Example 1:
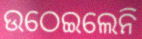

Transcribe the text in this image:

ଉଠେଇଲେନି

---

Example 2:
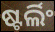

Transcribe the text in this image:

ଷ୍ଟର୍ଲିଂ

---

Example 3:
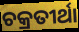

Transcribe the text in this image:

ଚକ୍ରତୀର୍ଥା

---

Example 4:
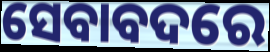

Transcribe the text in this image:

ସେବାବଦରେ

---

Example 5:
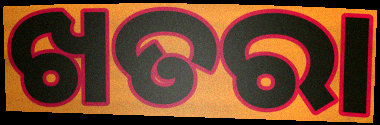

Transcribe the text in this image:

ଖତରା